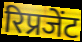
रिप्रजेंट